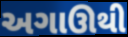
અગાઊથી